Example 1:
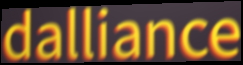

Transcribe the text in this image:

dalliance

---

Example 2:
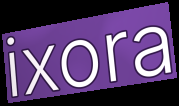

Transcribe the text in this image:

ixora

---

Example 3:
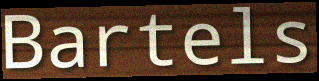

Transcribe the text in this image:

Bartels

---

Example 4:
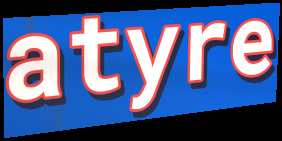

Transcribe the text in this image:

atyre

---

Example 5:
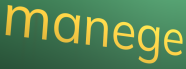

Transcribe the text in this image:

manege